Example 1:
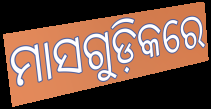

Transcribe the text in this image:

ମାସଗୁଡ଼ିକରେ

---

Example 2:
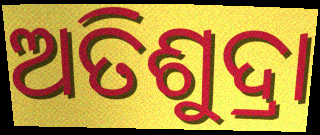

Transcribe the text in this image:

ଅତିଶୁଦ୍ରା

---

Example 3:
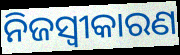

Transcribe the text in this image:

ନିଜସ୍ବୀକାରଣ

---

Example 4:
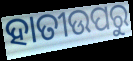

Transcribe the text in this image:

ହାତୀଉପରୁ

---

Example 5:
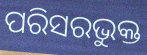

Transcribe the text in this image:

ପରିସରଭୁକ୍ତ